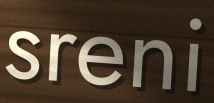
sreni